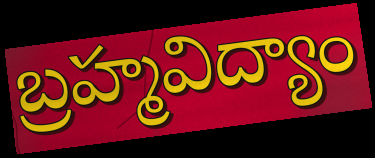
బ్రహ్మవిద్యాం